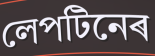
লেপটিনেৰ